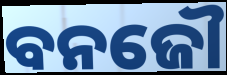
ବନଜୌ